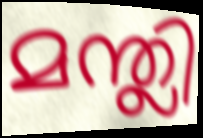
മന്ത്ലി